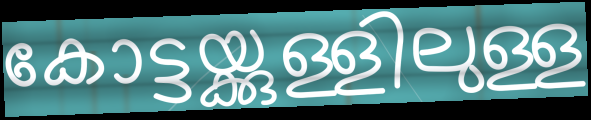
കോട്ടയ്ക്കുള്ളിലുള്ള